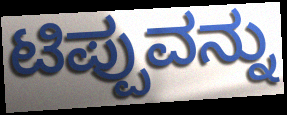
ಟಿಪ್ಪುವನ್ನು